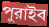
পুরাইব